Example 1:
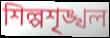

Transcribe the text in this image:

শিল্পশৃঙ্খল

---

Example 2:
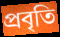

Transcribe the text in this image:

প্রবৃতি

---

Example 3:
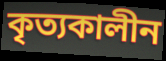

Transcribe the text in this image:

কৃত্যকালীন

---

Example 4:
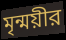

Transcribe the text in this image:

মৃন্ময়ীর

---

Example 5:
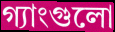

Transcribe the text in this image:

গ্যাংগুলো